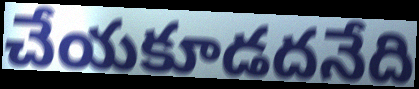
చేయకూడదనేది